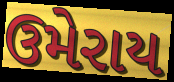
ઉમેરાય